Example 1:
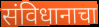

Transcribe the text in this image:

संविधानाचा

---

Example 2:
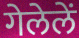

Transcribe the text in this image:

गेलेलें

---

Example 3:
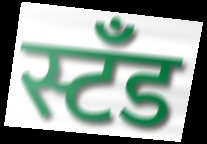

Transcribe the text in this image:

स्टँड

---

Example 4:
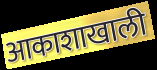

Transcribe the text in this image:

आकाशाखाली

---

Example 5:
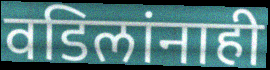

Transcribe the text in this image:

वडिलांनाही